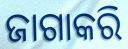
ଜାଗାକରି